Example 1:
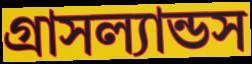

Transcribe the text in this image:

গ্রাসল্যান্ডস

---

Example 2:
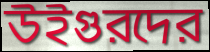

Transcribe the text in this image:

উইগুরদের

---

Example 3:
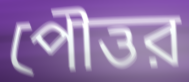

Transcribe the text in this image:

পৌত্তর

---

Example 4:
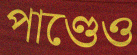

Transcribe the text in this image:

পাণ্ডেও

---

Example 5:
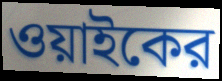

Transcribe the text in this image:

ওয়াইকের